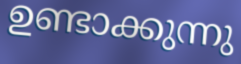
ഉണ്ടാക്കുന്നു